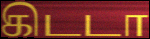
கிடடா